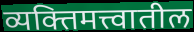
व्यक्तिमत्त्वातील